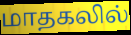
மாதகலில்